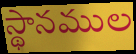
స్థానముల